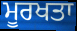
ਮੂਰਖਤਾ